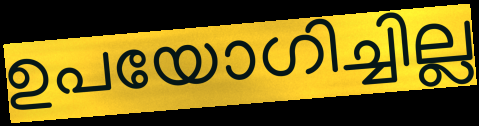
ഉപയോഗിച്ചില്ല